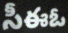
సీఈఓ